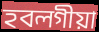
হবলগীয়া